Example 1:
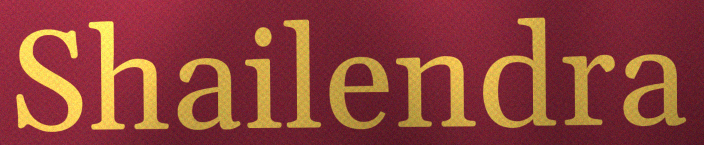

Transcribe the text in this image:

Shailendra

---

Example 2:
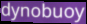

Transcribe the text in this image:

dynobuoy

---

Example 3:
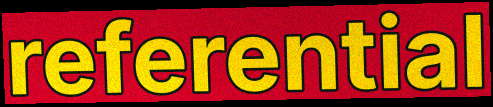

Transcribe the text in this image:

referential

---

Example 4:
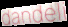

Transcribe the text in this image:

dandeli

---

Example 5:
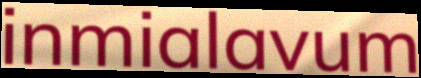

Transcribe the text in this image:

inmialavum